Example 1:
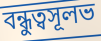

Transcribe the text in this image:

বন্ধুত্বসূলভ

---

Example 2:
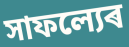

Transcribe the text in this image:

সাফল্যেৰ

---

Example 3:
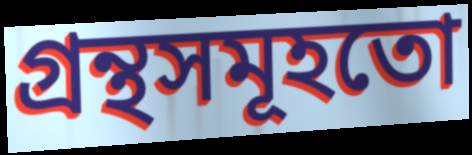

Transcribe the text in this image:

গ্ৰন্থসমূহতো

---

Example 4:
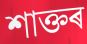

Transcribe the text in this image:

শাক্তৰ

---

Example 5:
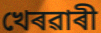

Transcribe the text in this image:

খেৰৱাৰী